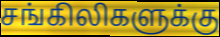
சங்கிலிகளுக்கு